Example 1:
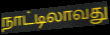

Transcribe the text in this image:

நாட்டிலாவது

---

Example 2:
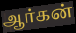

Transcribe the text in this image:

ஆர்கன்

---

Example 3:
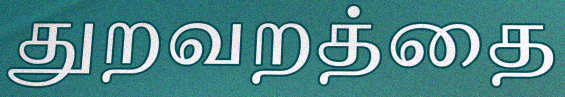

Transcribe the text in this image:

துறவறத்தை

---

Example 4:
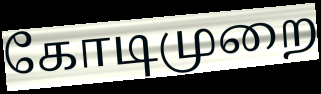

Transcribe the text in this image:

கோடிமுறை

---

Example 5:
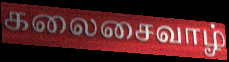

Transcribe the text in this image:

கலைசைவாழ்